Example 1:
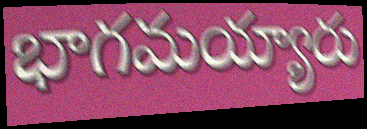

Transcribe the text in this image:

భాగమయ్యారు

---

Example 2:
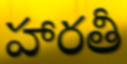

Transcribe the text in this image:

హారతీ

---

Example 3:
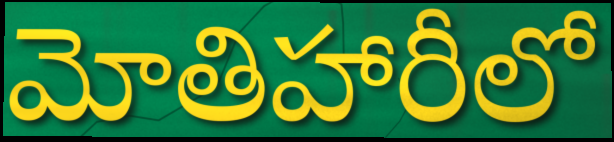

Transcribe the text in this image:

మోతిహారీలో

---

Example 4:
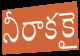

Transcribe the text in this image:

నీరాకకై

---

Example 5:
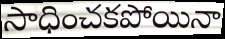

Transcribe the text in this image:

సాధించకపోయినా